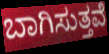
ಬಾಗಿಸುತ್ತವೆ